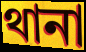
থানা